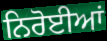
ਨਿਰੋਈਆਂ